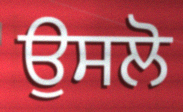
ਉਸਲੋ